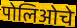
पोलिओचे